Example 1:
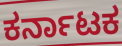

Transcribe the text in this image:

ಕರ್ನಾಟಕ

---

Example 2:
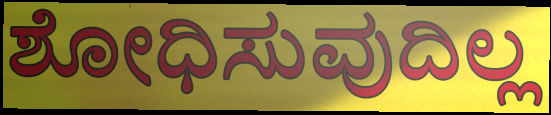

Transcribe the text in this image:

ಶೋಧಿಸುವುದಿಲ್ಲ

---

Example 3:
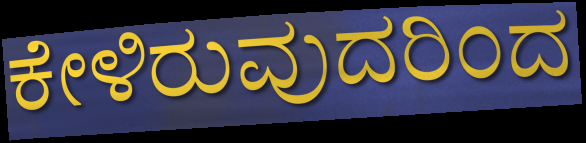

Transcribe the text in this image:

ಕೇಳಿರುವುದರಿಂದ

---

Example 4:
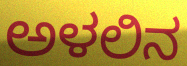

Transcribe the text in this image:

ಅಳಲಿನ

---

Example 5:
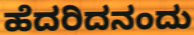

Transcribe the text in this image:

ಹೆದರಿದನಂದು